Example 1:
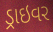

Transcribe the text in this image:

ડ્રાઇવર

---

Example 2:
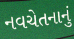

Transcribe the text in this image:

નવચેતનાનું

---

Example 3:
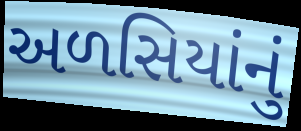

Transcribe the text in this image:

અળસિયાંનું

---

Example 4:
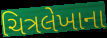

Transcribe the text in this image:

ચિત્રલેખાના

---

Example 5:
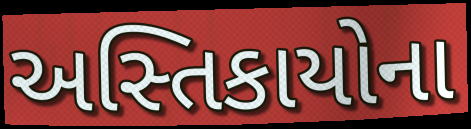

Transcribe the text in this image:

અસ્તિકાયોના